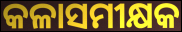
କଳାସମୀକ୍ଷକ